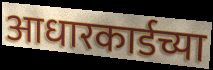
आधारकार्डच्या